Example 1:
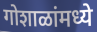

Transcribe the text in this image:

गोशाळांमध्ये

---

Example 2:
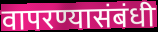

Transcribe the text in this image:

वापरण्यासंबंधी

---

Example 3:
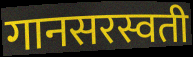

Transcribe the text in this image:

गानसरस्वती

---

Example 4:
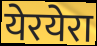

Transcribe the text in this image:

येरयेरा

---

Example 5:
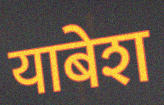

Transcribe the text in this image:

याबेश